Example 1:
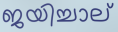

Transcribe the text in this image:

ജയിച്ചാല്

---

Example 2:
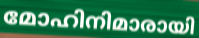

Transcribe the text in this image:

മോഹിനിമാരായി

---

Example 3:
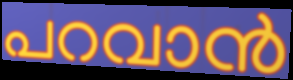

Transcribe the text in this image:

പറവാൻ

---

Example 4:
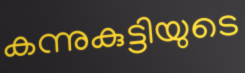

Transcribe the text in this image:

കന്നുകുട്ടിയുടെ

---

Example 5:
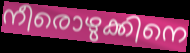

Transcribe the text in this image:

നീരൊഴുക്കിനെ